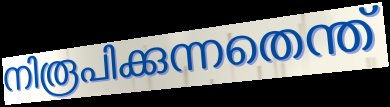
നിരൂപിക്കുന്നതെന്ത്